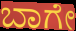
ಬಾಗೇ